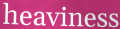
heaviness